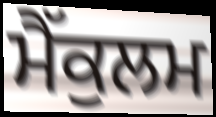
ਮੈੱਕੁਲਮ